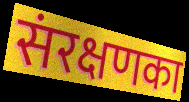
संरक्षणका